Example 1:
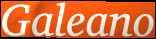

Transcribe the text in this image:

Galeano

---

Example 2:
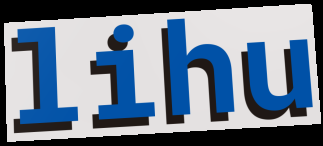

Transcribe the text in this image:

lihu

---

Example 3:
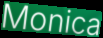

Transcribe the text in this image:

Monica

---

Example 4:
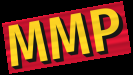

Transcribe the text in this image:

MMP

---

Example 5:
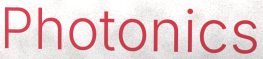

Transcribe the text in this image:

Photonics